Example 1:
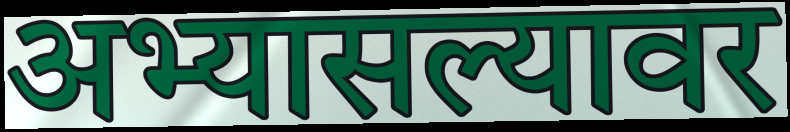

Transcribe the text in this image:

अभ्यासल्यावर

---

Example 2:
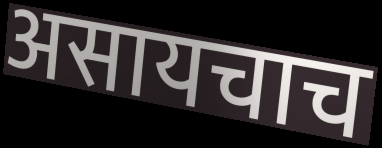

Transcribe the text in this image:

असायचाच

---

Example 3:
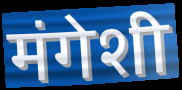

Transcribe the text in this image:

मंगेशी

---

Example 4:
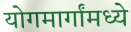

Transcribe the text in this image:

योगमार्गांमध्ये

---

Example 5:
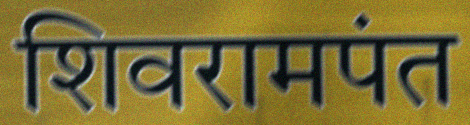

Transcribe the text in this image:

शिवरामपंत